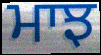
ਮਾਝ